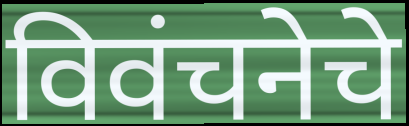
विवंचनेचे